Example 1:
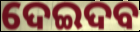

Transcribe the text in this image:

ଦେଇଦବ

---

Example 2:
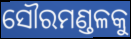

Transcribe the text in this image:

ସୌରମଣ୍ଡଳକୁ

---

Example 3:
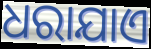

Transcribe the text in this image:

ଧରାଯାଏ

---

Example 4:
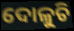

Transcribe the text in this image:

ଦୋଳୁଚି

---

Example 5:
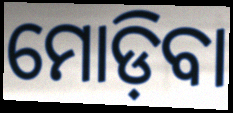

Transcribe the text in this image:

ମୋଡ଼ିବା